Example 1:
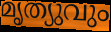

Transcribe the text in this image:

മൃത്യുവും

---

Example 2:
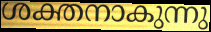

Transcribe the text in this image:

ശക്തനാകുന്നു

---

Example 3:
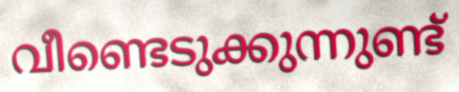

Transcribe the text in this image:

വീണ്ടെടുക്കുന്നുണ്ട്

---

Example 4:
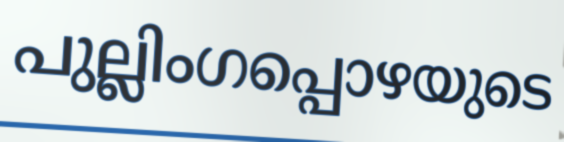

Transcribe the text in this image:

പുല്ലിംഗപ്പൊഴയുടെ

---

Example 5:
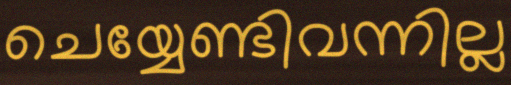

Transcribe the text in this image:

ചെയ്യേണ്ടിവന്നില്ല